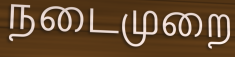
நடைமுறை